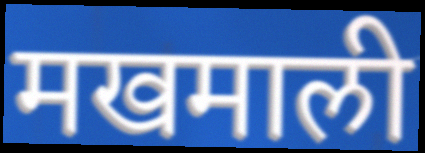
मखमाली